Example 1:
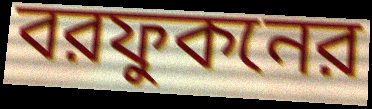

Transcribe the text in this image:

বরফুকনের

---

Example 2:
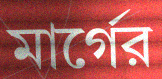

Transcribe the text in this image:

মার্গের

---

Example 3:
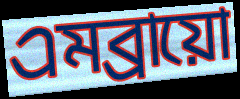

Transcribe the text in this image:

এমব্রায়ো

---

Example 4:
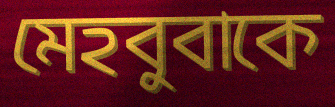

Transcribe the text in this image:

মেহবুবাকে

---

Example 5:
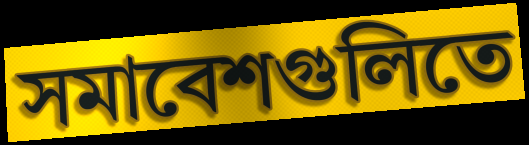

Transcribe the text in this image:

সমাবেশগুলিতে